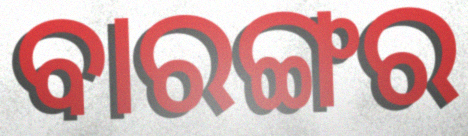
ବାରଙ୍ଗର